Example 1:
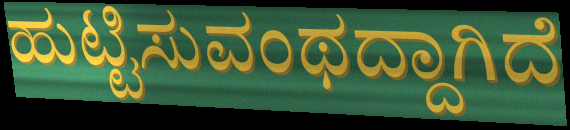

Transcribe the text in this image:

ಹುಟ್ಟಿಸುವಂಥದ್ದಾಗಿದೆ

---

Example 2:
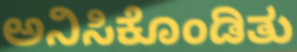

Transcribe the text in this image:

ಅನಿಸಿಕೊಂಡಿತು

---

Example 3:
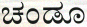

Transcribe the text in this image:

ಚಂಡೂ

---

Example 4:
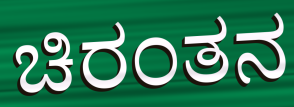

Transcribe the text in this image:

ಚಿರಂತನ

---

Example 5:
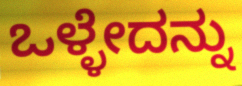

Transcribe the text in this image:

ಒಳ್ಳೇದನ್ನು